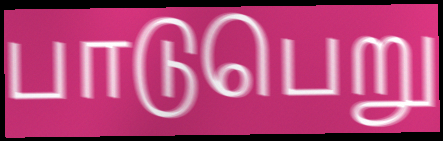
பாடுபெறு